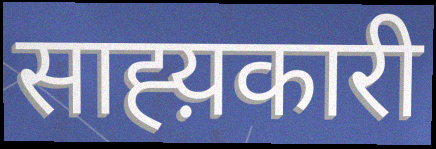
साह्य़कारी